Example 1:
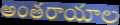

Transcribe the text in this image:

అంతరాయాల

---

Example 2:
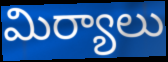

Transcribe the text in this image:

మిర్యాలు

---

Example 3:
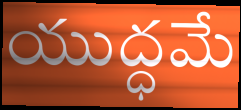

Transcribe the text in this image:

యుద్ధమే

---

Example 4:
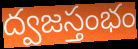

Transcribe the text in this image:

ద్వజస్తంభం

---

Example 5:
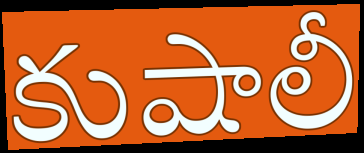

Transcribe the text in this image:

కుషాలీ